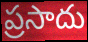
ప్రసాదు